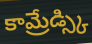
కామ్రేడ్స్కి